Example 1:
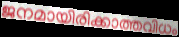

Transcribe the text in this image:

ജനമായിരിക്കാത്തവിധം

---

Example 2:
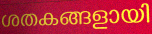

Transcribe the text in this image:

ശതകങ്ങളായി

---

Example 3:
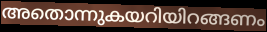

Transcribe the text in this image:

അതൊന്നുകയറിയിറങ്ങണം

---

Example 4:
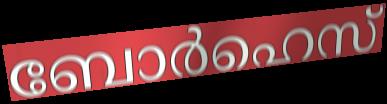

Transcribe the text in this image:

ബോർഹെസ്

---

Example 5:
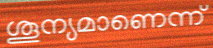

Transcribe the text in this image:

ശൂന്യമാണെന്ന്